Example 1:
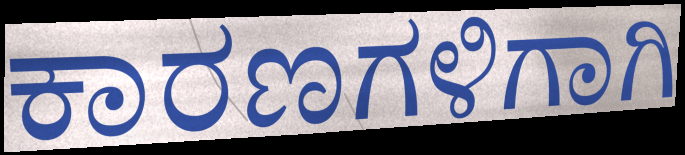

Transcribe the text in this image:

ಕಾರಣಗಳಿಗಾಗಿ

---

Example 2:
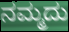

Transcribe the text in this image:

ನಮ್ಮದು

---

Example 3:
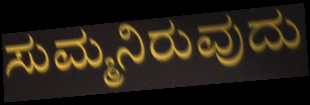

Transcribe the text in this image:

ಸುಮ್ಮನಿರುವುದು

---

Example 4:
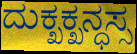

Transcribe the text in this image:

ದುಕ್ಖಕ್ಖನ್ಧಸ್ಸ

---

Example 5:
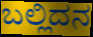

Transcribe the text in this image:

ಬಲ್ಲಿದನ